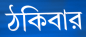
ঠকিবার